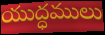
యుద్ధములు